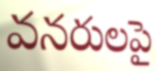
వనరులపై